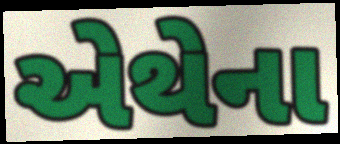
એથેના